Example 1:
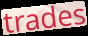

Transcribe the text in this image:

trades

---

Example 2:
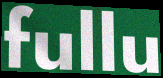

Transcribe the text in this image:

fullu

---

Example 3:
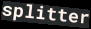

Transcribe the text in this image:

splitter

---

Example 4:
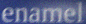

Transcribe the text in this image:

enamel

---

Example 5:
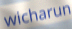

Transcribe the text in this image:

wicharun